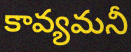
కావ్యమనీ